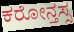
ಕರೋನ್ತಸ್ಸ